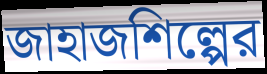
জাহাজশিল্পের